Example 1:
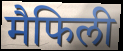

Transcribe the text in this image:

मैफिली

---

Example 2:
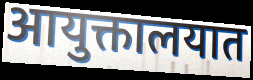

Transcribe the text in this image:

आयुक्तालयात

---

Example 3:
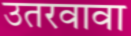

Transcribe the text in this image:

उतरवावा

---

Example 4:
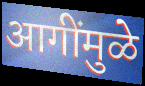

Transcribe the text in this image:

आगींमुळे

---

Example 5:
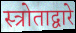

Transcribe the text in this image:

स्त्रोताद्वारे